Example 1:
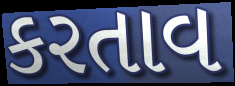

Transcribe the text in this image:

કરતાવ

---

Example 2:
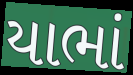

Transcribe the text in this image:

યાભાં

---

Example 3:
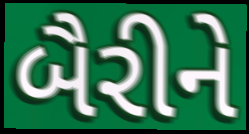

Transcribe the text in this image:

બૈરીને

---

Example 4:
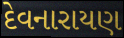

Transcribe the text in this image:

દેવનારાયણ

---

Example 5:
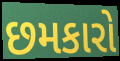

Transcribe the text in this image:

છમકારો